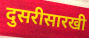
दुसरीसारखी